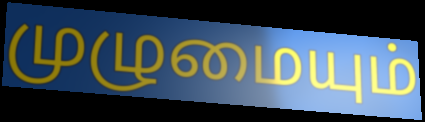
முழுமையும்